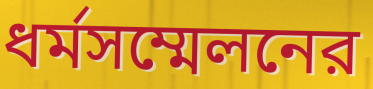
ধর্মসম্মেলনের